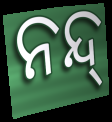
ନନ୍ଦ୍